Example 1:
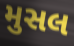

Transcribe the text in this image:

મુસલ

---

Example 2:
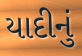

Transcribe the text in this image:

યાદીનું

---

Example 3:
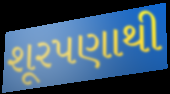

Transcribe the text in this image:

શૂરપણાથી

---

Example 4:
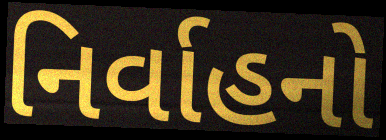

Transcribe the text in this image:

નિર્વાહનો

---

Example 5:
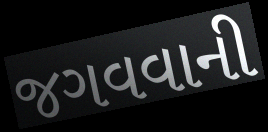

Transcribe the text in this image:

જગવવાની